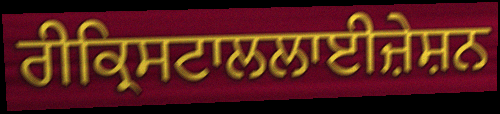
ਰੀਕ੍ਰਿਸਟਾਲਲਾਈਜ਼ੇਸ਼ਨ